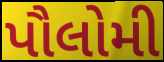
પૌલોમી